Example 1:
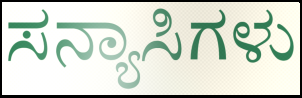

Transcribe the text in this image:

ಸನ್ಯಾಸಿಗಳು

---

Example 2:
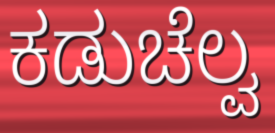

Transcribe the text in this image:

ಕಡುಚೆಲ್ವ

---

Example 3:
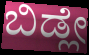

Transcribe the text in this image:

ಬಿಡ್ಲೇ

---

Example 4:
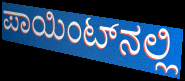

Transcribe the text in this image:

ಪಾಯಿಂಟ್‌ನಲ್ಲಿ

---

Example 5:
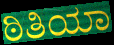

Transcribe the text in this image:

ಠಿತಿಯಾ